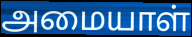
அமையாள்